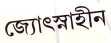
জ্যোৎস্নাহীন